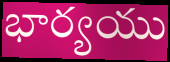
భార్యయు